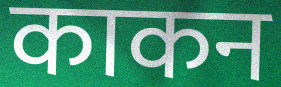
काकन